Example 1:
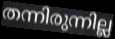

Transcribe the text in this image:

തന്നിരുന്നില്ല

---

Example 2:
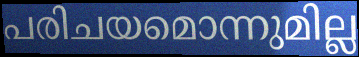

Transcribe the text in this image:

പരിചയമൊന്നുമില്ല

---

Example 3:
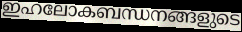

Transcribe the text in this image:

ഇഹലോകബന്ധനങ്ങളുടെ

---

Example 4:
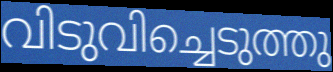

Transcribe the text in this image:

വിടുവിച്ചെടുത്തു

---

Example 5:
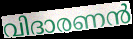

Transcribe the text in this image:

വിദാരണൻ